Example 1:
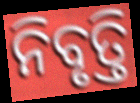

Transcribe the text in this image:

ନିବୃତ୍ତି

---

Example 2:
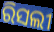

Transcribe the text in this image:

ରିସଲୀ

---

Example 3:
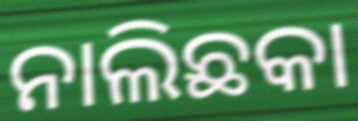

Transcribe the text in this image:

ନାଲିଛକା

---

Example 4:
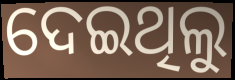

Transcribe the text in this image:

ଦେଇଥିଲୁ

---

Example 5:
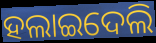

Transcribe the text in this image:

ହଲାଇଦେଲି